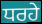
ਧਰਹੇ